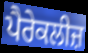
ਪੈਰੇਕਲੀਜ਼